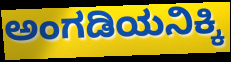
ಅಂಗಡಿಯನಿಕ್ಕಿ